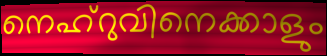
നെഹ്റുവിനെക്കാളും